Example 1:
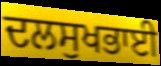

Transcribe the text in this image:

ਦਲਸੁਖਭਾਈ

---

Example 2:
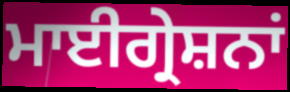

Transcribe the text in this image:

ਮਾਈਗ੍ਰੇਸ਼ਨਾਂ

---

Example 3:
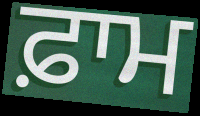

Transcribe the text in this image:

ਫ਼ਾਮ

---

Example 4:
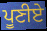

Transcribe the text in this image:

ਪੂਣੀਏ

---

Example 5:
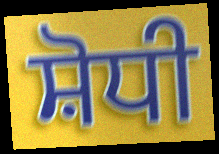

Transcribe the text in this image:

ਸ਼ੋਧੀ